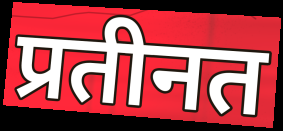
प्रतीनत